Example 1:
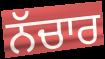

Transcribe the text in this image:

ਨੱਚਾਰ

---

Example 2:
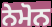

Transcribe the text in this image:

ਨੇਮੋਨ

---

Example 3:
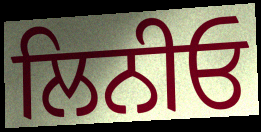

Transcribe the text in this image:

ਲਿਨੀਓ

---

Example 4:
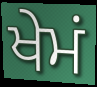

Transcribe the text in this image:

ਖੇਮਂ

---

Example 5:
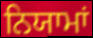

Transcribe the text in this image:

ਨਿਯਾਮਾਂ